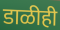
डाळीही